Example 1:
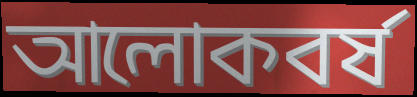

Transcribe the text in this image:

আলোকবর্ষ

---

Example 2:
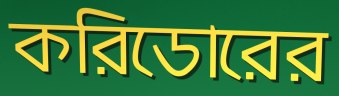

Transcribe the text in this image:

করিডোরের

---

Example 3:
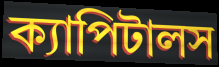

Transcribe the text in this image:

ক্যাপিটালস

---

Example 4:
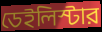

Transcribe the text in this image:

ডেইলিস্টার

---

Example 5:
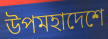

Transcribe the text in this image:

উপমহাদেশে